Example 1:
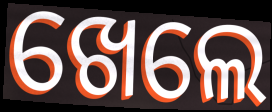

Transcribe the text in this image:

ଖେଲେ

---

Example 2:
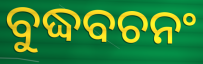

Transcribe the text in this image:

ବୁଦ୍ଧବଚନଂ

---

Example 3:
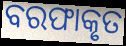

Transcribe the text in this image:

ବରଫାକୃତ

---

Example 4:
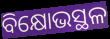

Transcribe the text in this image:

ବିକ୍ଷୋଭସ୍ଥଳ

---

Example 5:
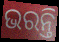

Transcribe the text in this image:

ଭରନ୍ତି